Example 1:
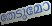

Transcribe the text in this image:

തേടുമോ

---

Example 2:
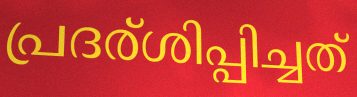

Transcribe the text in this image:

പ്രദര്ശിപ്പിച്ചത്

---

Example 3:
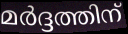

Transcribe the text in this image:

മർദ്ദത്തിന്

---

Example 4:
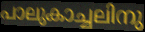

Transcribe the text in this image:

പാലുകാച്ചലിനു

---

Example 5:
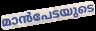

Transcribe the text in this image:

മാൻപേടയുടെ